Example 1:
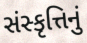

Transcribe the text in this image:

સંસ્કૃત્તિનું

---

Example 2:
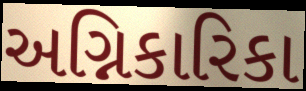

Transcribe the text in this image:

અગ્નિકારિકા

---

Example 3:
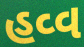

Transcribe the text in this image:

હવ્વ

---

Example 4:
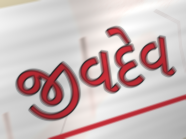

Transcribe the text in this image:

જીવદેવ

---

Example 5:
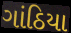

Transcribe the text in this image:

ગાંઠિયા